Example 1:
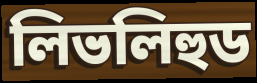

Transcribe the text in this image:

লিভলিহুড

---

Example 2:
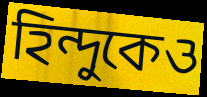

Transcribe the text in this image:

হিন্দুকেও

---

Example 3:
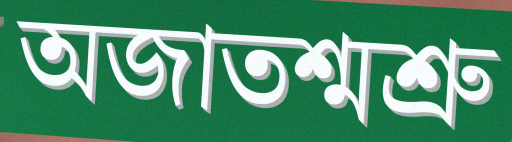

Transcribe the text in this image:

অজাতশ্মশ্রু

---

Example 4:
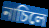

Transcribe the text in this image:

নাচিলে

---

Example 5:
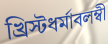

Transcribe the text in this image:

খ্রিস্টধর্মাবলম্বী